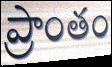
ప్రాంతం